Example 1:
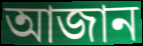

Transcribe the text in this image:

আজান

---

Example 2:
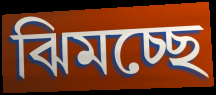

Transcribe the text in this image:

ঝিমচ্ছে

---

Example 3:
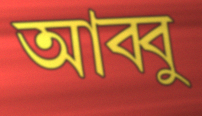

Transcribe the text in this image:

আব্বু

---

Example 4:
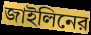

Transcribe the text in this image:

জাইলিনের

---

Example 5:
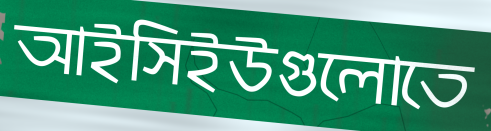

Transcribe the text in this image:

আইসিইউগুলোতে